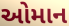
ઓમાન